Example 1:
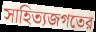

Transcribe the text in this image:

সাহিত্যজগতের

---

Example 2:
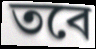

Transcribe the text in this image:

তবে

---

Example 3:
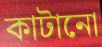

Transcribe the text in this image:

কাটানো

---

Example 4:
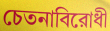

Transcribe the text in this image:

চেতনাবিরোধী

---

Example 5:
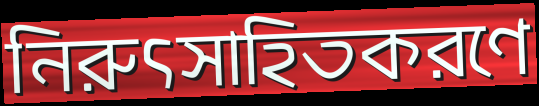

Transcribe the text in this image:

নিরুৎসাহিতকরণে